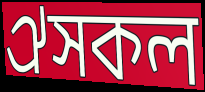
ঐসকল